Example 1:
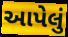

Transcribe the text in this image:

આપેલું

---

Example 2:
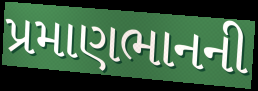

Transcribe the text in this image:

પ્રમાણભાનની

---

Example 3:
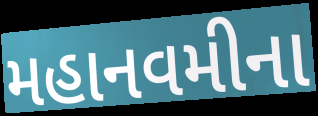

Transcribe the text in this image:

મહાનવમીના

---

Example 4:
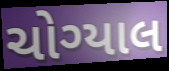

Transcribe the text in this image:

ચોગ્યાલ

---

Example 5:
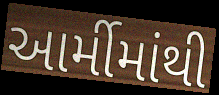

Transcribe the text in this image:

આર્મીમાંથી